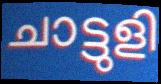
ചാട്ടുളി